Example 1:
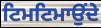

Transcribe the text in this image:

ਟਿਮਟਿਮਾਉਂਦੇ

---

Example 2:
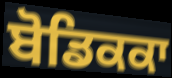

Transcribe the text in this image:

ਬੋਡਿਕਕਾ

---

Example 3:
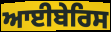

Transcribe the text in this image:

ਆਈਬੇਰਿਸ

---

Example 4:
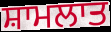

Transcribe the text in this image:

ਸ਼ਾਮਲਾਤ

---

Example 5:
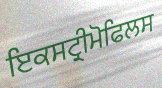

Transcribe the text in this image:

ਇਕਸਟ੍ਰੀਮੋਫਿਲਸ